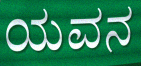
ಯವನ